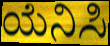
ಯೆನಿಸಿ